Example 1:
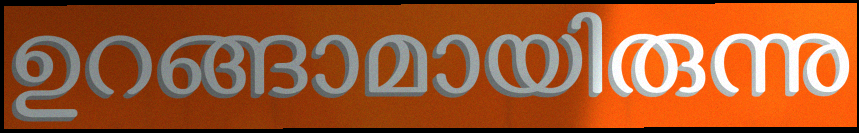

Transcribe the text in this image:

ഉറങ്ങാമായിരുന്നു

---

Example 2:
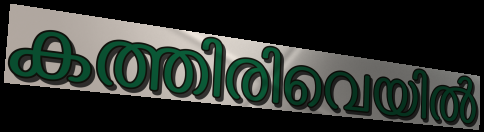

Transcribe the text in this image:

കത്തിരിവെയിൽ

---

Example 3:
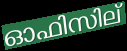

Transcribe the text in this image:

ഓഫിസില്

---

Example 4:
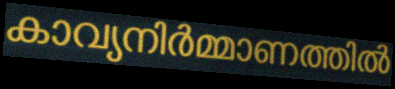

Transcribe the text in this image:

കാവ്യനിർമ്മാണത്തിൽ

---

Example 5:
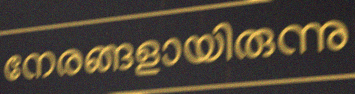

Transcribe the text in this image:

നേരങ്ങളായിരുന്നു